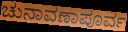
ಚುನಾವಣಾಪೂರ್ವ